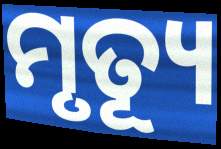
ମୃତ୍ୟୂ